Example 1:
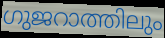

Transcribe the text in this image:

ഗുജറാത്തിലും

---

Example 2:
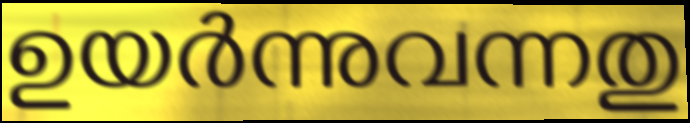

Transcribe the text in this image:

ഉയർന്നുവന്നതു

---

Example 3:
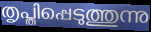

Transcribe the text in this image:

തൃപ്തിപ്പെടുത്തുന്നു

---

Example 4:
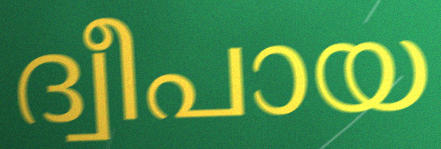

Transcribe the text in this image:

ദ്വീപായ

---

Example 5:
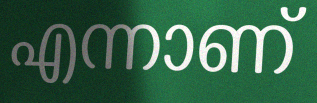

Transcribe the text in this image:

എന്നാണ്